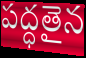
పద్ధతైన